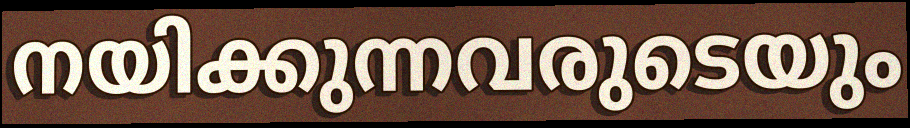
നയിക്കുന്നവരുടെയും